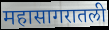
महासागरातली